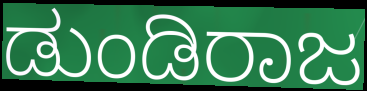
ಡುಂಡಿರಾಜ